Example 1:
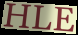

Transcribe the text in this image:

HLE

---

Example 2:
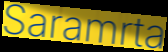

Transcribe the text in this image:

Saramrta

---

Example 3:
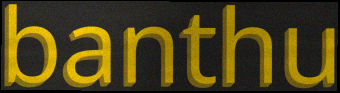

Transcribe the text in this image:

banthu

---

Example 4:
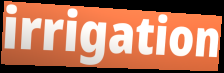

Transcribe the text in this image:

irrigation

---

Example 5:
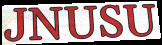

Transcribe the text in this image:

JNUSU